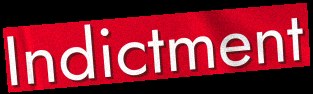
Indictment